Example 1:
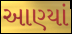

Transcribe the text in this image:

આણ્યાં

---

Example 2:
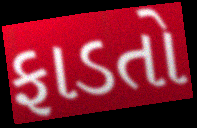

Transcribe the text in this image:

ફાડતો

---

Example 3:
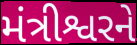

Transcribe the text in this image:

મંત્રીશ્વરને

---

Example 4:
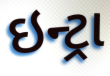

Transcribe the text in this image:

ઇન્ટ્રા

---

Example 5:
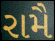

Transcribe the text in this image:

રામૈ